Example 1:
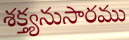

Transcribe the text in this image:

శక్త్యనుసారము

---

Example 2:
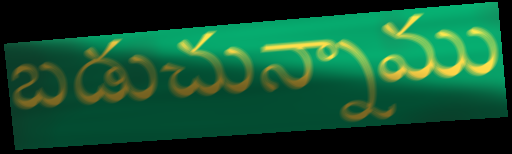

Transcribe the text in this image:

బడుచున్నాము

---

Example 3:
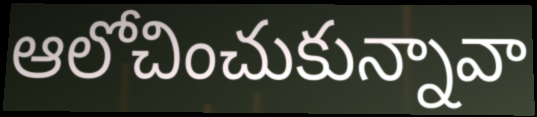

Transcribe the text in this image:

ఆలోచించుకున్నావా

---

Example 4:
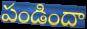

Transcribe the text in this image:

పండిందా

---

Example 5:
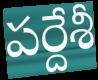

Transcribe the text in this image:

పర్దేశీ